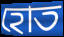
হোত